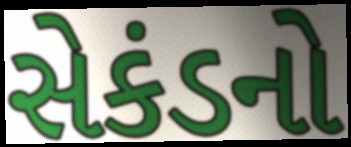
સેકંડનો